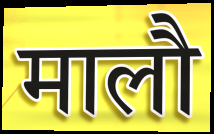
मालौ